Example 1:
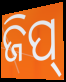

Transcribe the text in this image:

ଜିପ୍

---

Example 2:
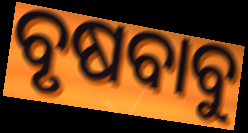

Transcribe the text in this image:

ବୃଷବାବୁ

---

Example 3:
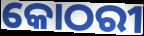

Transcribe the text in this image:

କୋଠରୀ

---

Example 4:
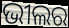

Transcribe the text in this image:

ଭୀଲର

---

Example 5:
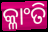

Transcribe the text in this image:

କ୍ଳାଂତି